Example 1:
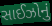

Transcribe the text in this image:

સાઈઝોનું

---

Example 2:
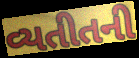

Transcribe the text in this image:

વ્યતીતની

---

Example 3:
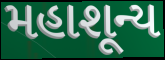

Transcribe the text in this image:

મહાશૂન્ય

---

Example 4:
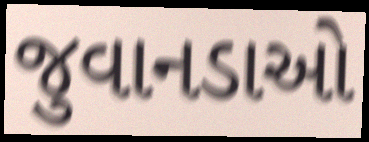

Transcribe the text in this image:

જુવાનડાઓ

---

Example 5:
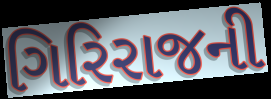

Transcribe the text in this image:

ગિરિરાજની